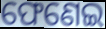
ଫେଣେଇ